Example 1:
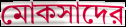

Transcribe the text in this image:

মোকসাদের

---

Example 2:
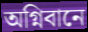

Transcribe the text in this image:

অগ্নিবানে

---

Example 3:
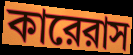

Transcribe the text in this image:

কারেরাস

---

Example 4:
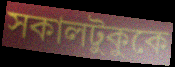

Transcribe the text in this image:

সকালটুকুকে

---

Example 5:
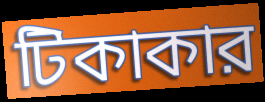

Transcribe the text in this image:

টিকাকার